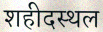
शहीदस्थल